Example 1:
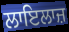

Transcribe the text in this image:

ਲਾਇਲਾਜ਼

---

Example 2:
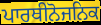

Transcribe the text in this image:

ਪਾਰਥੀਨੋਜਨਿਕ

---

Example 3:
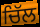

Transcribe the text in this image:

ਚਿੱਲ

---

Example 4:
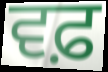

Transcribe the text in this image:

ਵਫ਼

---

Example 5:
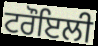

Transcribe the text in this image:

ਟਰੌਇਲੀ